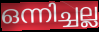
ഒന്നിച്ചല്ല